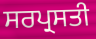
ਸਰਪ੍ਰਸਤੀ